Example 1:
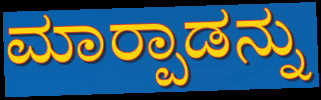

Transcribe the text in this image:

ಮಾರ‍್ಪಾಡನ್ನು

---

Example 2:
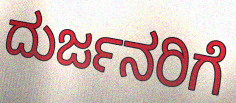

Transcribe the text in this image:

ದುರ್ಜನರಿಗೆ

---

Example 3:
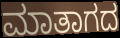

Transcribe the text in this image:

ಮಾತಾಗದ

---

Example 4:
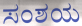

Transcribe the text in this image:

ಸಂಶಯ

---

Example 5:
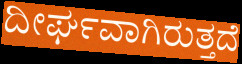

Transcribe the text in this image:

ದೀರ್ಘವಾಗಿರುತ್ತದೆ